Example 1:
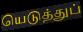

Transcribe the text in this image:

யெடுத்துப்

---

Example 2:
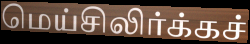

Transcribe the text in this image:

மெய்சிலிர்க்கச்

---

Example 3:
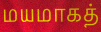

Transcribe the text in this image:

மயமாகத்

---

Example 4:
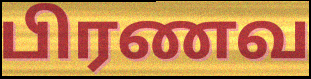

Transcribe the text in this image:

பிரணவ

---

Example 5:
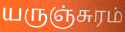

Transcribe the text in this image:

யருஞ்சுரம்